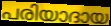
പരിയാദായ